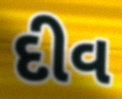
દીવ